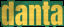
danta